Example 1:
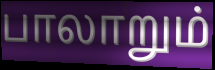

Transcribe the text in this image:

பாலாறும்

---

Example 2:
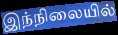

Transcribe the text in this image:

இந்நிலையில்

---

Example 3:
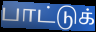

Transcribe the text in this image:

பாட்டுக்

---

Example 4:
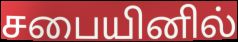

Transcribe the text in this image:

சபையினில்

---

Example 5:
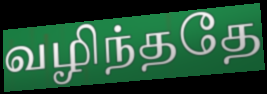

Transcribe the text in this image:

வழிந்ததே